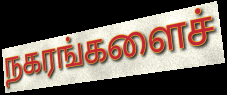
நகரங்களைச்